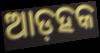
ଆଡ଼ହକ